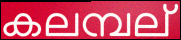
കലമ്പല്